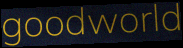
goodworld